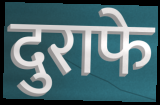
दुराफे